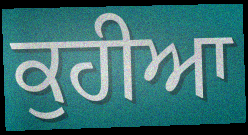
ਕੁਹੀਆ